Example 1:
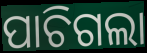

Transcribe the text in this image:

ପାଚିଗଲା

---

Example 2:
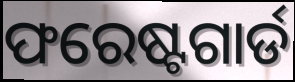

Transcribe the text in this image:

ଫରେଷ୍ଟଗାର୍ଡ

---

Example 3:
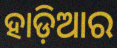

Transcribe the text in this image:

ହାଡ଼ିଆର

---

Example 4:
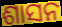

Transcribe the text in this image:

ଶାସନ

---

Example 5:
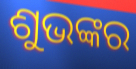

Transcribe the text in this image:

ଶୁଭଙ୍କର